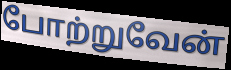
போற்றுவேன்